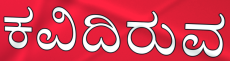
ಕವಿದಿರುವ